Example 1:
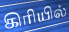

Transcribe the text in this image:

கிரியில்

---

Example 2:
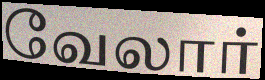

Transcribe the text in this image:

வேலார்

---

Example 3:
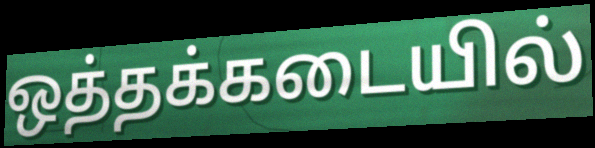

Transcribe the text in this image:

ஒத்தக்கடையில்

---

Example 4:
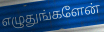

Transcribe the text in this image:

எழுதுங்களேன்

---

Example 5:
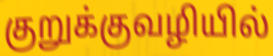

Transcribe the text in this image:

குறுக்குவழியில்